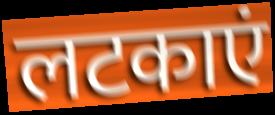
लटकाएं